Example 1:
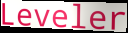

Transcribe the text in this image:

Leveler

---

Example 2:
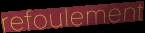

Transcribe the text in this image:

refoulement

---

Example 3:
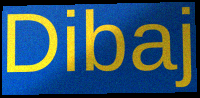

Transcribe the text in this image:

Dibaj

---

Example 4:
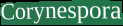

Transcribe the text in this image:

Corynespora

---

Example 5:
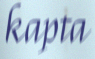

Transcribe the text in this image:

kapta